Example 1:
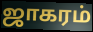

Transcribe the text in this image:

ஜாகரம்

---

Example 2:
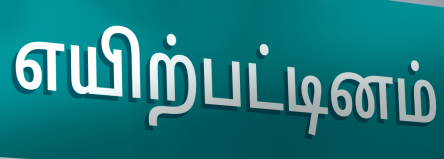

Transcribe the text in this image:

எயிற்பட்டினம்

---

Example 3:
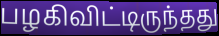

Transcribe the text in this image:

பழகிவிட்டிருந்தது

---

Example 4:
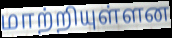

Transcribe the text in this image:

மாற்றியுள்ளன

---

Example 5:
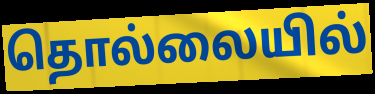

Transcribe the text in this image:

தொல்லையில்